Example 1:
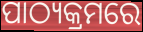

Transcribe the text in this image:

ପାଠ୍ୟକ୍ରମରେ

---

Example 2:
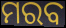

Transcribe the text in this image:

ମରବ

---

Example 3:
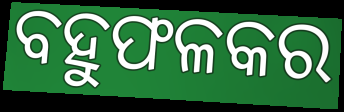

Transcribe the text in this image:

ବହୁଫଳକର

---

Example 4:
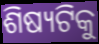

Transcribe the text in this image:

ଶିଷ୍ୟଟିକୁ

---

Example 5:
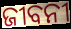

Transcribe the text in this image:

ଜୀବନୀ